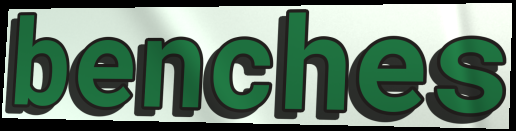
benches